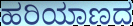
ಹರಿಯಾಣದ